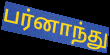
பர்னாந்து